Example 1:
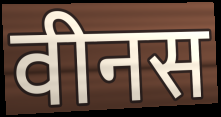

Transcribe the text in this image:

वीनस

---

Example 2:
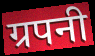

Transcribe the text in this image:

ग्रपनी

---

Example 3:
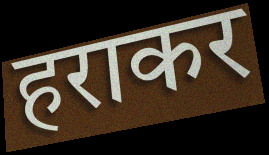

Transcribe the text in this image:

हराकर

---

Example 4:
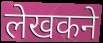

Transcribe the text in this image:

लेखकने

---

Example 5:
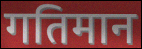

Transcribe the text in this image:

गतिमान